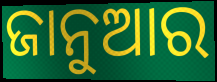
ଜାନୁଆର